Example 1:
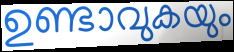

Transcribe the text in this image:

ഉണ്ടാവുകയും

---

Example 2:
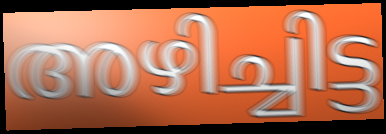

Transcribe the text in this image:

അഴിച്ചിട്ട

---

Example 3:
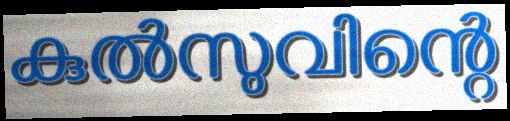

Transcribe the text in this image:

കുൽസുവിന്റെ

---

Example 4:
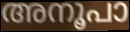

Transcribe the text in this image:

അനൂപാ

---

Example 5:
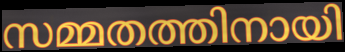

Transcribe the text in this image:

സമ്മതത്തിനായി